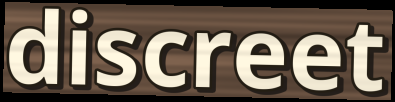
discreet